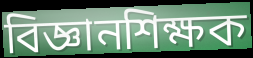
বিজ্ঞানশিক্ষক